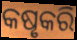
କଷୃକରି